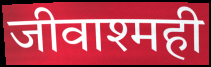
जीवाश्मही